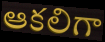
ఆకలిగా